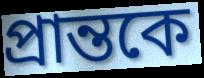
প্রান্তকে